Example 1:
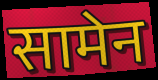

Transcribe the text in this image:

सामेन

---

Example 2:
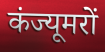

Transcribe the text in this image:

कंज्यूमरों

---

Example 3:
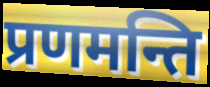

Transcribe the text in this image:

प्रणमन्ति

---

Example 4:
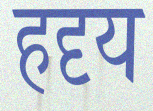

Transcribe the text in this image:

हदृय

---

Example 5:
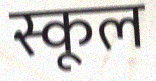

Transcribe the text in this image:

स्‍कूल